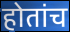
होतांच